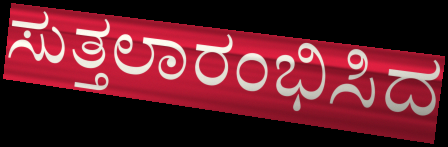
ಸುತ್ತಲಾರಂಭಿಸಿದ